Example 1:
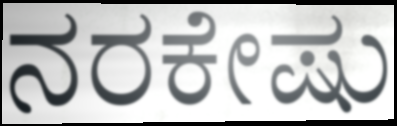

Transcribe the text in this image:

ನರಕೇಷು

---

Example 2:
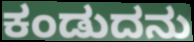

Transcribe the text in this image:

ಕಂಡುದನು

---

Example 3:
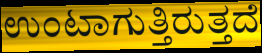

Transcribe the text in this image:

ಉಂಟಾಗುತ್ತಿರುತ್ತದೆ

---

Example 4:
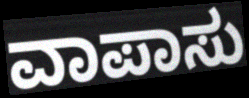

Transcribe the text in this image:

ವಾಪಾಸು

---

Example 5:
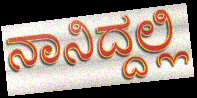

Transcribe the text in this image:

ನಾನಿದ್ದಲ್ಲಿ